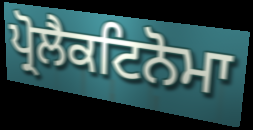
ਪ੍ਰੋਲੈਕਟਿਨੋਮਾ